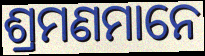
ଶ୍ରମଣମାନେ